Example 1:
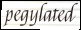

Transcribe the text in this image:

pegylated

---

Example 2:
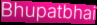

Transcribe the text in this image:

Bhupatbhai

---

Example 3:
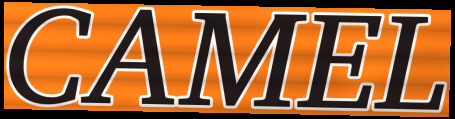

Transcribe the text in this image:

CAMEL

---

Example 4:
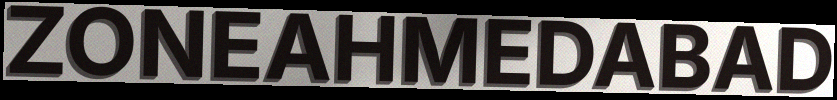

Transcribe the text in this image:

ZONEAHMEDABAD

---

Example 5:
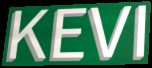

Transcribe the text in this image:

KEVI